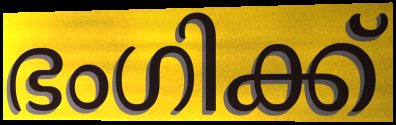
ഭംഗിക്ക്